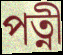
পত্নী